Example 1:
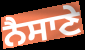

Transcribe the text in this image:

ਨੈਸਾਣੇ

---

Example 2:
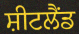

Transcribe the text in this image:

ਸ਼ੀਟਲੈਂਡ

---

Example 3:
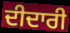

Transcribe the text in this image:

ਦੀਦਾਰੀ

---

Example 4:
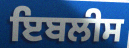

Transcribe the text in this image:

ਇਬਲੀਸ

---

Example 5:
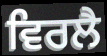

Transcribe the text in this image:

ਵਿਰਲੈ